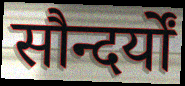
सौन्दर्यों